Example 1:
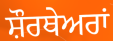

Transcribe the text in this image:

ਸ਼ੌਰਥੇਅਰਾਂ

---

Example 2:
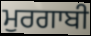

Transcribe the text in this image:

ਮੁਰਗਾਬੀ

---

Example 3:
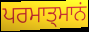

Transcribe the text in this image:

ਪਰਮਾਤ੍ਮਾਨਂ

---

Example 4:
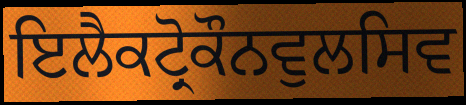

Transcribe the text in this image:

ਇਲੈਕਟ੍ਰੋਕੌਨਵੁਲਸਿਵ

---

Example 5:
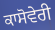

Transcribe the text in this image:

ਕਾਸੋਵੇਰੀ